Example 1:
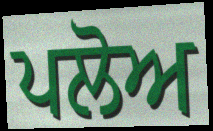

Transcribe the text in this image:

ਪਲੋਅ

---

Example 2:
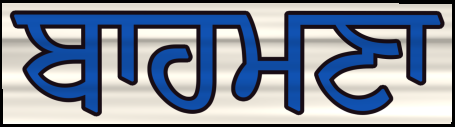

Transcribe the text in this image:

ਬਾਹਮਣਾ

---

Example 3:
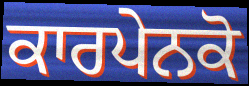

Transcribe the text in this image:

ਕਾਰਪੇਨਕੋ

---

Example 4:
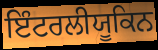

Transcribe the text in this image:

ਇੰਟਰਲੀਯੂਕਿਨ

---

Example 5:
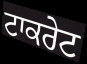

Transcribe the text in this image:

ਟਾਕਰੇਟ